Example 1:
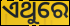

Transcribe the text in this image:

ଏଥୁରେ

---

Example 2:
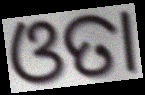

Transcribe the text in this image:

ଓତା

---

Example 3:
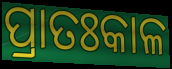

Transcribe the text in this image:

ପ୍ରାତଃକାଳ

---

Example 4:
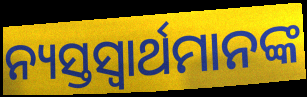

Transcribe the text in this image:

ନ୍ୟସ୍ତସ୍ଵାର୍ଥମାନଙ୍କ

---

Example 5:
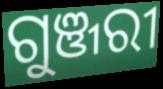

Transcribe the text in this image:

ଗୁଞ୍ଜରୀ